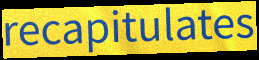
recapitulates